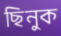
ছিনুক